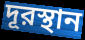
দূরস্থান